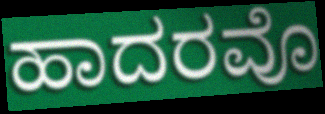
ಹಾದರವೊ